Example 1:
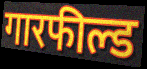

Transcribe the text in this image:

गारफील्ड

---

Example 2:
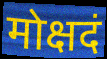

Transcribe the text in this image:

मोक्षदं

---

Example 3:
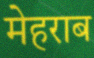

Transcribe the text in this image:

मेहराब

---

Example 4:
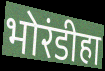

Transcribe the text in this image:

भोरंडीहा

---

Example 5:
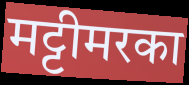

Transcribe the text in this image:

मट्टीमरका